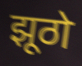
झूठो